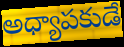
అధ్యాపకుడే